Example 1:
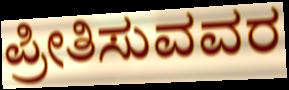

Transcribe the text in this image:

ಪ್ರೀತಿಸುವವರ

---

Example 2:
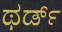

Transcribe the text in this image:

ಥರ್ಡ್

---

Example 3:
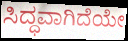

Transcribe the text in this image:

ಸಿದ್ಧವಾಗಿದೆಯೇ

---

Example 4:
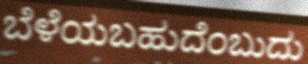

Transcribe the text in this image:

ಬೆಳೆಯಬಹುದೆಂಬುದು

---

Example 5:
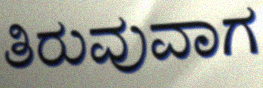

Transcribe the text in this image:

ತಿರುವುವಾಗ